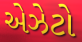
એઝેટો